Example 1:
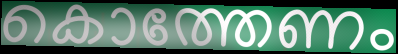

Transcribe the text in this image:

കൊത്തേണം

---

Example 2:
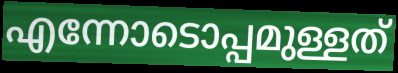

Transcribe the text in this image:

എന്നോടൊപ്പമുള്ളത്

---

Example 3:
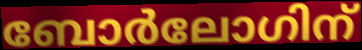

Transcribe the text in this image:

ബോർലോഗിന്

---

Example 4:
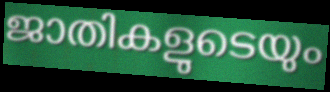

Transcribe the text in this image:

ജാതികളുടെയും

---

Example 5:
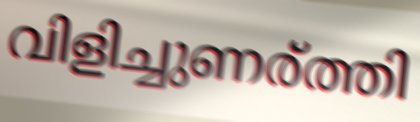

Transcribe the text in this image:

വിളിച്ചുണര്ത്തി